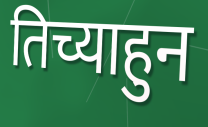
तिच्याहुन